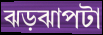
ঝড়ঝাপটা